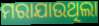
ମରାଯାଉଥିଲା